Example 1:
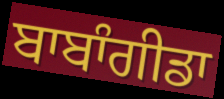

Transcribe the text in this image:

ਬਾਬਾੰਗੀਡਾ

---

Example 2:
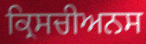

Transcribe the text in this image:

ਕ੍ਰਿਸਚੀਅਨਸ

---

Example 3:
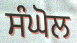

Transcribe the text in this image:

ਸੰਘੋਲ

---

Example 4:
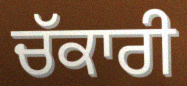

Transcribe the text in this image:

ਚੱਕਾਰੀ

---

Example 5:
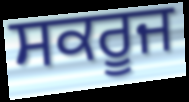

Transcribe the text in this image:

ਸਕਰੂਜ